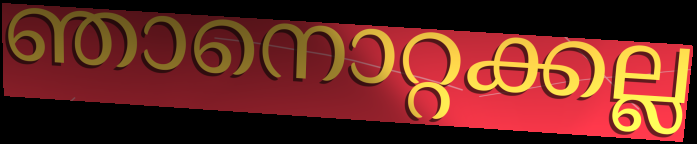
ഞാനൊറ്റക്കല്ല